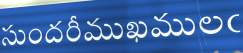
సుందరీముఖములఁ